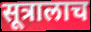
सूत्रालाच